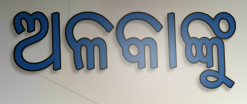
ଅଳକାଙ୍କୁ